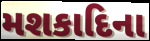
મશકાદિના